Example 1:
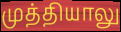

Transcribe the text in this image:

முத்தியாலு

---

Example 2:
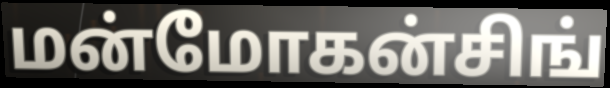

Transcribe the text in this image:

மன்மோகன்சிங்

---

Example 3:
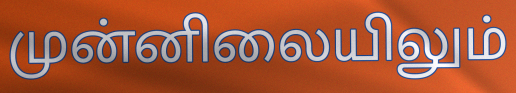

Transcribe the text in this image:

முன்னிலையிலும்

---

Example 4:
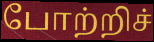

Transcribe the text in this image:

போற்றிச்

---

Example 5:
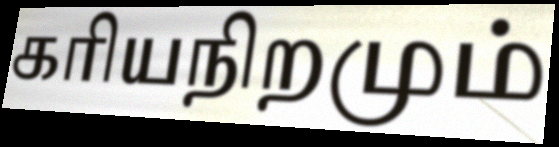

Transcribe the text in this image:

கரியநிறமும்